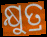
କ୍ଷୁତ୍ର